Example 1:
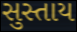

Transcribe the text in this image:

સુસ્તાય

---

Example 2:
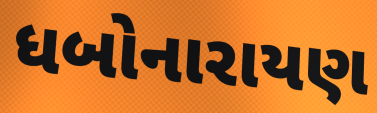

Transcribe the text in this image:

ધબોનારાયણ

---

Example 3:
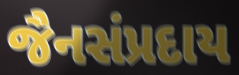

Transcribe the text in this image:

જૈનસંપ્રદાય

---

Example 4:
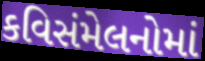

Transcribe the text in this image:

કવિસંમેલનોમાં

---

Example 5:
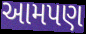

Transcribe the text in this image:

આમપણ